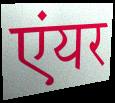
एंयर